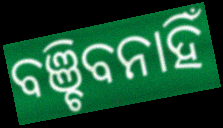
ବଞ୍ଚିବନାହିଁ